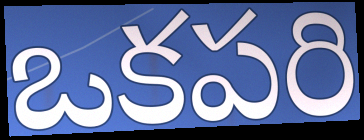
ఒకపరి